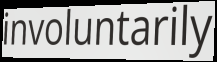
involuntarily